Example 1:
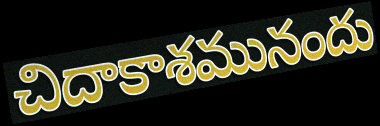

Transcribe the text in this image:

చిదాకాశమునందు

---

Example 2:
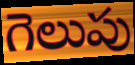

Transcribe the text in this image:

గెలుపు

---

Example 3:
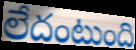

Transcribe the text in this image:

లేదంటుంది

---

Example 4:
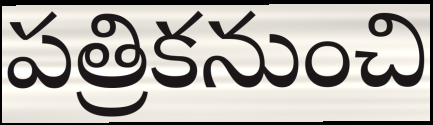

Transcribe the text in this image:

పత్రికనుంచి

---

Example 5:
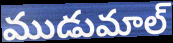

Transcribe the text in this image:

ముడుమాల్